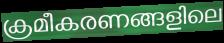
ക്രമീകരണങ്ങളിലെ